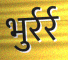
भुर्रर्र